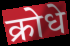
क्रोधे